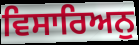
ਵਿਸਾਰਿਅਨੁ